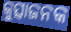
କୁତ୍ସାଜନକ